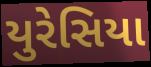
યુરેસિયા